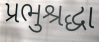
પ્રભુશ્રદ્ધા